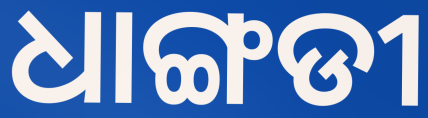
ଧାଙ୍ଗଡୀ